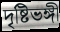
দৃষ্টিভঙ্গী